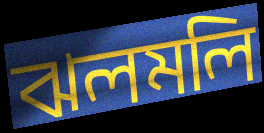
ঝলমলি